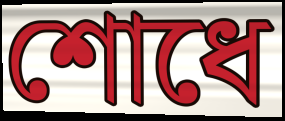
শোধে